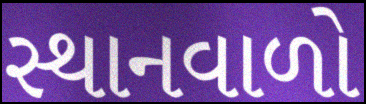
સ્થાનવાળો